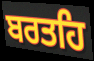
ਬਰਤਹਿ